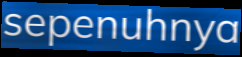
sepenuhnya